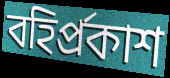
বহিৰ্প্ৰকাশ